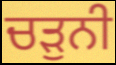
ਚੜੁਨੀ